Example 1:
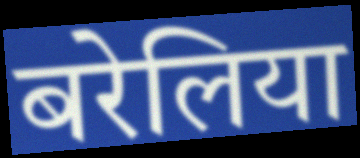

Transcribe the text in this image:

बरेलिया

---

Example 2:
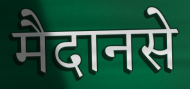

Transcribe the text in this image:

मैदानसे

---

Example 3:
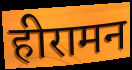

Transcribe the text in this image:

हीरामन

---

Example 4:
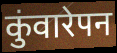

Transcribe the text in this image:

कुंवारेपन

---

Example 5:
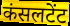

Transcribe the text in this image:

कंसलटेंट